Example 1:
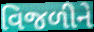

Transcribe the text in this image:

વિજળીને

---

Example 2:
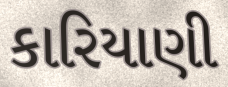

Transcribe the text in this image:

કારિયાણી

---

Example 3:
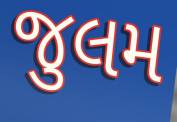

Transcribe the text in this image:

જુલમ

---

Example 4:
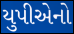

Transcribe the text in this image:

યુપીએનો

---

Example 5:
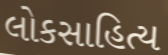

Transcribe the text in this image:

લોકસાહિત્ય